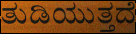
ತುಡಿಯುತ್ತದೆ